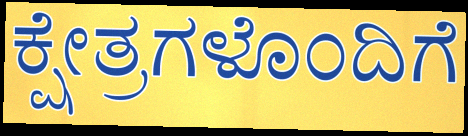
ಕ್ಷೇತ್ರಗಳೊಂದಿಗೆ